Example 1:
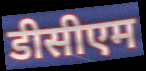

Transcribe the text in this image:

डीसीएम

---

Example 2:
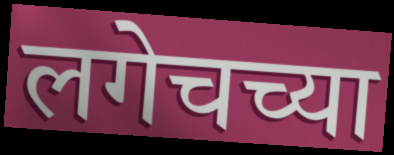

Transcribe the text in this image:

लगेचच्या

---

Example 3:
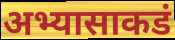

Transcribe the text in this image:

अभ्यासाकडं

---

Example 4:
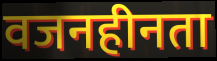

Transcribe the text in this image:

वजनहीनता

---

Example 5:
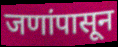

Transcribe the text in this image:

जणांपासून